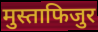
मुस्ताफिजुर